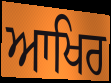
ਆਖਿਰ